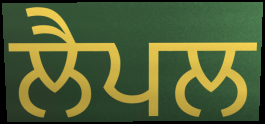
ਲੈਪਲ